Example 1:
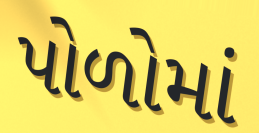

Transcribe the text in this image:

પોળોમાં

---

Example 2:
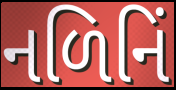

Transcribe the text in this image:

નળિનિં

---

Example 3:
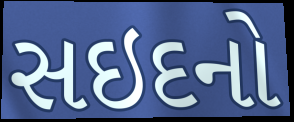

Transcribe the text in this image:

સઇદનો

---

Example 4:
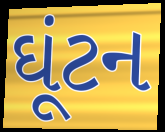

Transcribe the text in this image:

ઘૂંટન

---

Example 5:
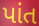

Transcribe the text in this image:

પાંત